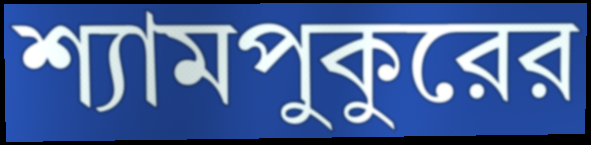
শ্যামপুকুরের